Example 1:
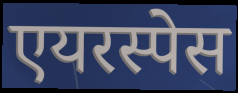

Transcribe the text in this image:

एयरस्पेस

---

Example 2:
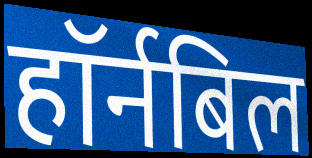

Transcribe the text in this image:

हॉर्नबिल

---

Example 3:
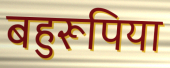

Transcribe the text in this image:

बहुरूपिया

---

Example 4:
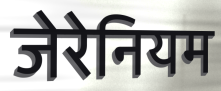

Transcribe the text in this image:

जेरेनियम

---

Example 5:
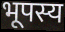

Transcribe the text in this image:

भूपस्य